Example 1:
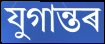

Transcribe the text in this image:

যুগান্তৰ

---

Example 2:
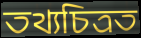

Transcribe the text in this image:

তথ্যচিত্ৰত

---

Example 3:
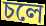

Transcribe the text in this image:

চলে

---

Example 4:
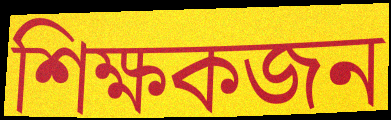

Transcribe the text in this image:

শিক্ষকজন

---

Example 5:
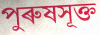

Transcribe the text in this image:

পুৰুষসূক্ত